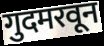
गुदमरवून